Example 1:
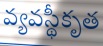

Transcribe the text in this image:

వ్యవస్థీకృత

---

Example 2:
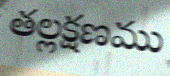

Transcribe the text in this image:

తల్లక్షణము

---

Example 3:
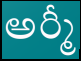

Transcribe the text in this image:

అర్మీ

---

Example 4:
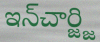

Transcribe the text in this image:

ఇన్‌చార్జ్జి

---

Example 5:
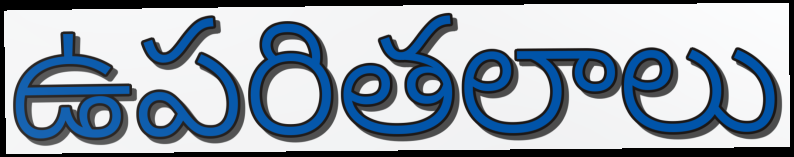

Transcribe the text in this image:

ఉపరితలాలు